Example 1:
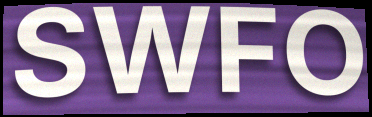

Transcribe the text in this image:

SWFO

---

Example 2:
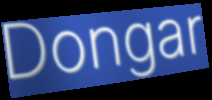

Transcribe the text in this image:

Dongar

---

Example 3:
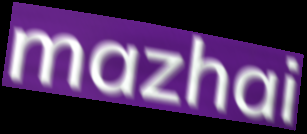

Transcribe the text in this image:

mazhai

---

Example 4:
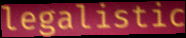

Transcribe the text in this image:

legalistic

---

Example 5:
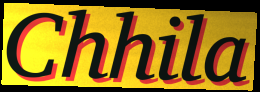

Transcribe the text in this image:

Chhila